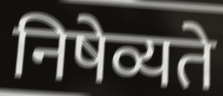
निषेव्यते